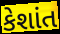
કેશાંત